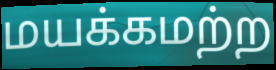
மயக்கமற்ற